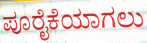
ಪೂರೈಕೆಯಾಗಲು